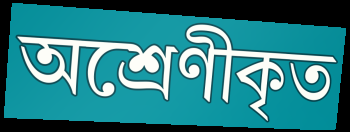
অশ্ৰেণীকৃত